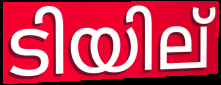
ടിയില്